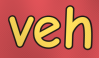
veh